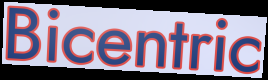
Bicentric